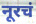
नूरचं